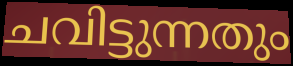
ചവിട്ടുന്നതും